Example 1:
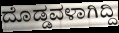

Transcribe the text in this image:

ದೊಡ್ಡವಳಾಗಿದ್ದಿ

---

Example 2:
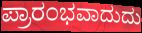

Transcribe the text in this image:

ಪ್ರಾರಂಭವಾದುದು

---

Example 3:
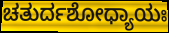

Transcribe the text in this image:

ಚತುರ್ದಶೋಧ್ಯಾಯಃ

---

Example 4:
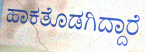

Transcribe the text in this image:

ಹಾಕತೊಡಗಿದ್ದಾರೆ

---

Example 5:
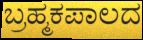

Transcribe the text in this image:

ಬ್ರಹ್ಮಕಪಾಲದ